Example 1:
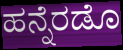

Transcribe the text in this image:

ಹನ್ನೆರಡೊ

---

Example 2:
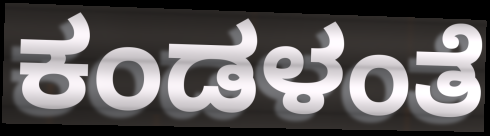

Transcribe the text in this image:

ಕಂಡಳಂತೆ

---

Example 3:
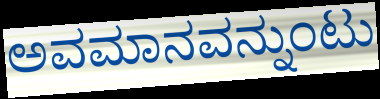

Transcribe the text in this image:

ಅವಮಾನವನ್ನುಂಟು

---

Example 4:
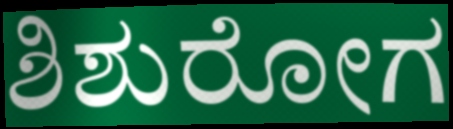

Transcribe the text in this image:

ಶಿಶುರೋಗ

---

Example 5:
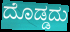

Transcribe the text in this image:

ದೊಡ್ಡದು